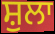
ਸ਼ੁਲਾ